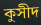
কুসীদ